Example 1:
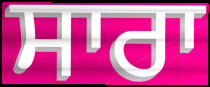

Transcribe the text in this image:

ਸਾਰਾ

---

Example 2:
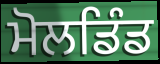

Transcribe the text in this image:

ਮੋਲਡਿੰਡ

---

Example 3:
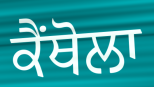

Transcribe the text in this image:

ਕੈਂਥੋਲਾ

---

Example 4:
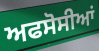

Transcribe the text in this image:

ਅਫਸੋਸੀਆਂ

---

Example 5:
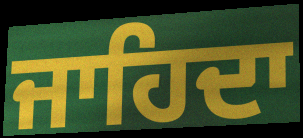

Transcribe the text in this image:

ਜਾਹਿਦਾ